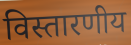
विस्तारणीय